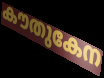
കൗതുകേന